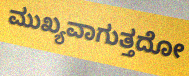
ಮುಖ್ಯವಾಗುತ್ತದೋ